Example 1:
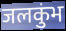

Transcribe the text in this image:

जलकुंभ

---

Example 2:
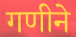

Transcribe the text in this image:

गणीने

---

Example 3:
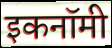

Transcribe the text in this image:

इकनॉमी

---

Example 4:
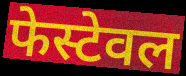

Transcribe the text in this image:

फेस्टेवल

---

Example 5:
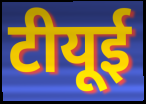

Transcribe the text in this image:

टीयूई